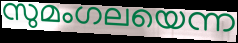
സുമംഗലയെന്ന